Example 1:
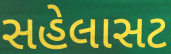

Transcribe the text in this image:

સહેલાસટ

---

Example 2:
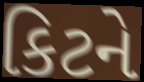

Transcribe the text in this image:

કિટને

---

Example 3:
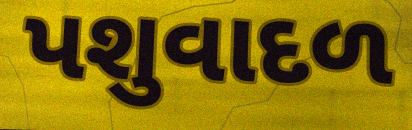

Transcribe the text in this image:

પશુવાદળ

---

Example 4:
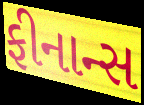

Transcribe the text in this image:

ફીનાન્સ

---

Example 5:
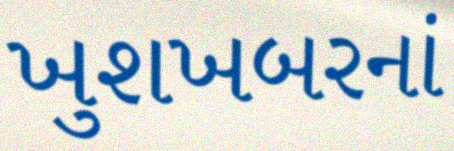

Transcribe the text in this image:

ખુશખબરનાં